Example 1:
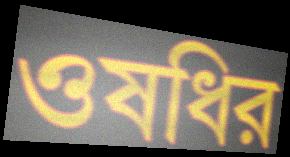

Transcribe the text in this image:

ওষধির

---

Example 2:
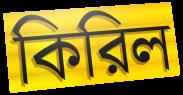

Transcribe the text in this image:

কিরিল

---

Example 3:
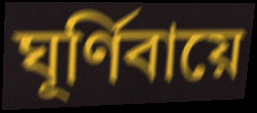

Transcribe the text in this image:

ঘূর্ণিবায়ে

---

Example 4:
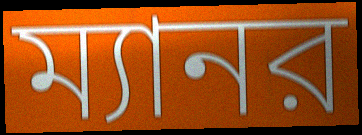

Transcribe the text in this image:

ম্যানর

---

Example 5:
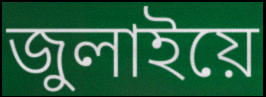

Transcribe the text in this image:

জুলাইয়ে